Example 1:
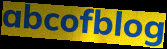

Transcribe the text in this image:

abcofblog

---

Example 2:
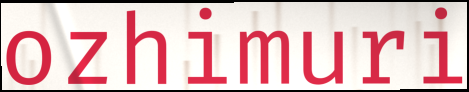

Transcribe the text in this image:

ozhimuri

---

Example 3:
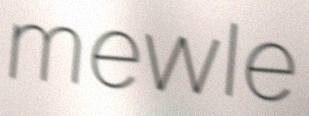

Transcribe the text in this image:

mewle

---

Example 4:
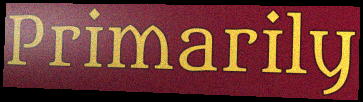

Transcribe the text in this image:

Primarily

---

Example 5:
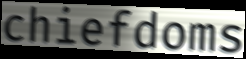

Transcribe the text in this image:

chiefdoms